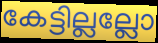
കേട്ടില്ലല്ലോ